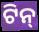
ଟିନ୍